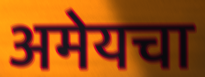
अमेयचा